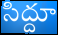
సిద్దూ